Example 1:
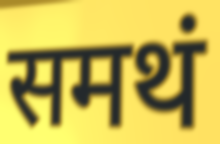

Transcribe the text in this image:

समथं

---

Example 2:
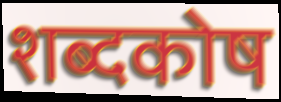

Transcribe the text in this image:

शब्दकोष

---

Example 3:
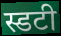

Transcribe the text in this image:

स्डटी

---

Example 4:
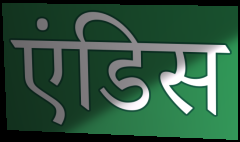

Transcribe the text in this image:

एंडिस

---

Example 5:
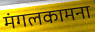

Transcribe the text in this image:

मंगलकामना